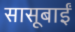
सासूबाईं